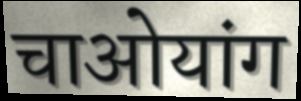
चाओयांग